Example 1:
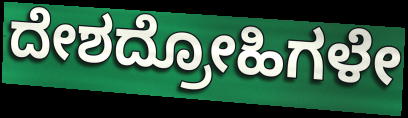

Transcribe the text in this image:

ದೇಶದ್ರೋಹಿಗಳೇ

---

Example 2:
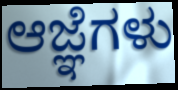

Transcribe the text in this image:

ಆಜ್ಞೆಗಳು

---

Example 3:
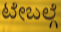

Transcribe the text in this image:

ಟೇಬಲ್ಗೆ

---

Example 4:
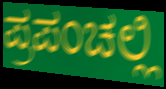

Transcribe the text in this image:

ಪ್ರಪಂಚಲ್ಲಿ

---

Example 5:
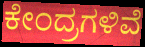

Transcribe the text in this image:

ಕೇಂದ್ರಗಳಿವೆ